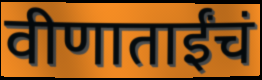
वीणाताईंचं